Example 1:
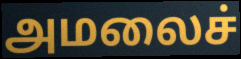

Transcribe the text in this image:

அமலைச்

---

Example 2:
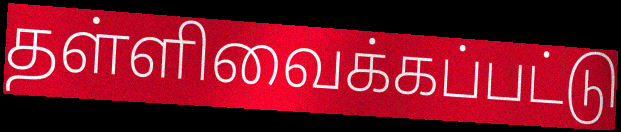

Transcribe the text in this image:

தள்ளிவைக்கப்பட்டு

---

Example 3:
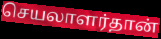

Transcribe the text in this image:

செயலாளர்தான்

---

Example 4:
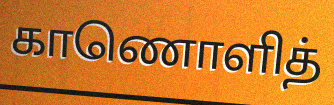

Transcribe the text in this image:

காணொளித்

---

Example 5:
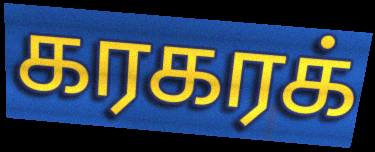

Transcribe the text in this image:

கரகரக்